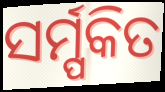
ସର୍ମ୍ପକିତ